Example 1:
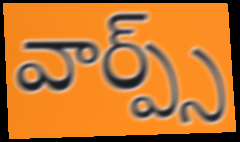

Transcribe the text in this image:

వార్ప్స్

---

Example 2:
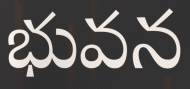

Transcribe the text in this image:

భువన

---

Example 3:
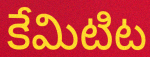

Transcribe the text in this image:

కేమిటిట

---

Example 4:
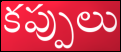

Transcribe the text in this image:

కప్పులు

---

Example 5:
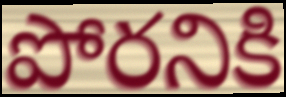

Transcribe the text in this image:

పోరనికి